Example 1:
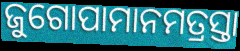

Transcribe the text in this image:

ଜୁଗୋପାମାନମତ୍ରସ୍ତା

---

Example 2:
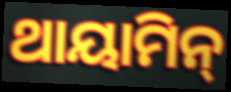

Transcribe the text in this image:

ଥାୟାମିନ୍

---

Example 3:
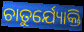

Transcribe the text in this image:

ଚାତୁର୍ଯ୍ୟୋକ୍ତି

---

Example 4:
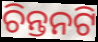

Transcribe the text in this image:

ଚିନ୍ତନଟି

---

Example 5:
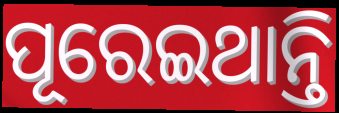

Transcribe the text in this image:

ପୂରେଇଥାନ୍ତି